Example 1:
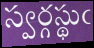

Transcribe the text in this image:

స్వర్గస్థుఁ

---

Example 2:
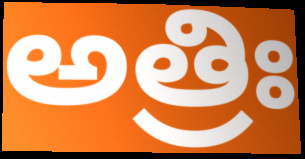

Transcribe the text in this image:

అత్రిః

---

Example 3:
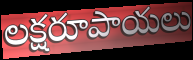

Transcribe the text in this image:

లక్షరూపాయలు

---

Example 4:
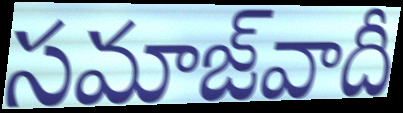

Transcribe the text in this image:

సమాజ్‌వాదీ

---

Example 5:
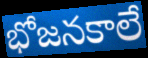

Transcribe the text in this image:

భోజనకాలే